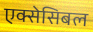
एक्सेसिबल